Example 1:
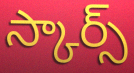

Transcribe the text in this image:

స్కార్స్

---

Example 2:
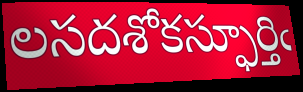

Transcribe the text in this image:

లసదశోకస్ఫూర్తిఁ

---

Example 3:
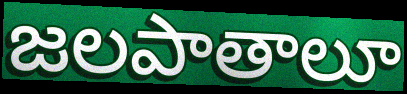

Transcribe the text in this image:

జలపాతాలూ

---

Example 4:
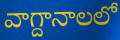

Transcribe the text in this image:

వాగ్దానాలలో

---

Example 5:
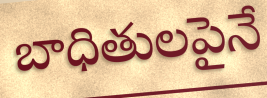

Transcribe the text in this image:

బాధితులపైనే